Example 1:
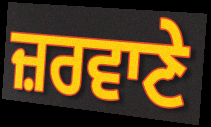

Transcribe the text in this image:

ਜ਼ਰਵਾਣੇ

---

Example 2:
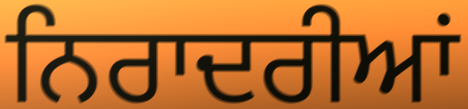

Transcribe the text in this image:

ਨਿਰਾਦਰੀਆਂ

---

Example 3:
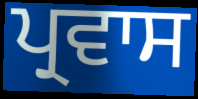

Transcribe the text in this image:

ਪ੍ਰਵਾਸ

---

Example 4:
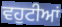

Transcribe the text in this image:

ਵਹੁਟੀਆਂ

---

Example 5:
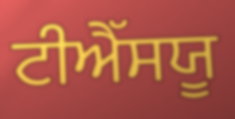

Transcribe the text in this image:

ਟੀਐੱਸਯੂ